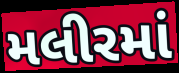
મલીરમાં